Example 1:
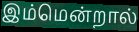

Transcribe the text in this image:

இம்மென்றால்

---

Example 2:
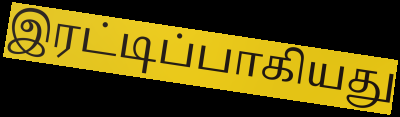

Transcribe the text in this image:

இரட்டிப்பாகியது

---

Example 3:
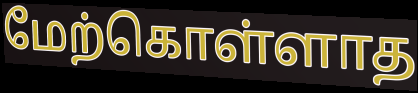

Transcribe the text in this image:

மேற்கொள்ளாத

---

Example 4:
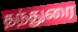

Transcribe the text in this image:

தந்துரை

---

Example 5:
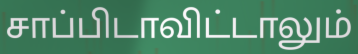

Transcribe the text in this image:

சாப்பிடாவிட்டாலும்